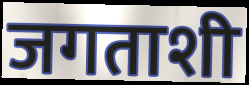
जगताशी